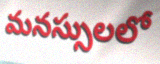
మనస్సులలో